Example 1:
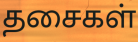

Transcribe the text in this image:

தசைகள்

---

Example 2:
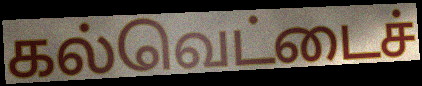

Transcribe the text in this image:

கல்வெட்டைச்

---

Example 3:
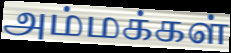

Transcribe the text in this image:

அம்மக்கள்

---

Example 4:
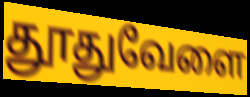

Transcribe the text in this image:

தூதுவேளை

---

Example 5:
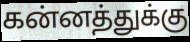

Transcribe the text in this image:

கன்னத்துக்கு